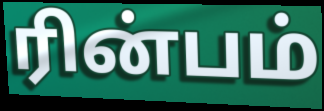
ரின்பம்